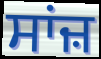
ਸਾਂਜ਼